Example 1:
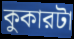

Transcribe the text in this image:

কুকারটা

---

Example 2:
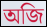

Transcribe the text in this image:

অজি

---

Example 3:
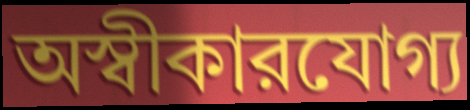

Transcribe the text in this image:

অস্বীকারযোগ্য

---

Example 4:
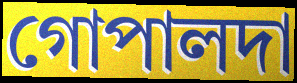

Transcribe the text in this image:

গোপালদা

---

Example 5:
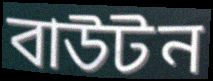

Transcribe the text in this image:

বাউটন